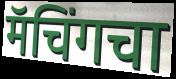
मॅचिंगचा